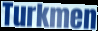
Turkmen